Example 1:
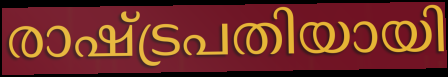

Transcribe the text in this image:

രാഷ്ട്രപതിയായി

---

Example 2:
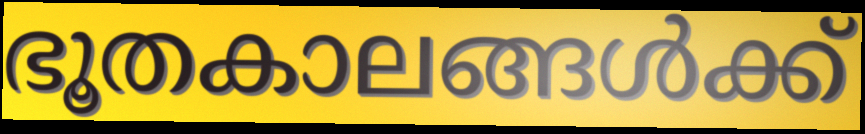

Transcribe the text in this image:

ഭൂതകാലങ്ങൾക്ക്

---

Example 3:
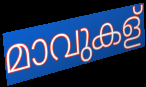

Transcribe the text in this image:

മാവുകള്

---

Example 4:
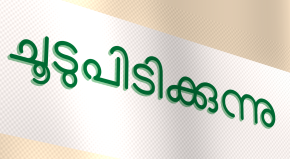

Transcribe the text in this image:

ചൂടുപിടിക്കുന്നു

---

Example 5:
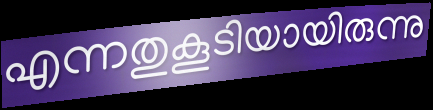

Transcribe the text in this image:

എന്നതുകൂടിയായിരുന്നു